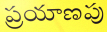
ప్రయాణపు